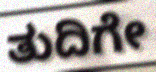
ತುದಿಗೇ